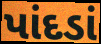
પાંદડાં